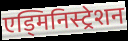
एड्मिनिस्ट्रेशन